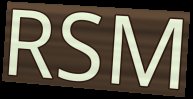
RSM